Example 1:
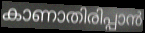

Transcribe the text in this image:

കാണാതിരിപ്പാൻ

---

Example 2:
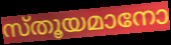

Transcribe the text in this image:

സ്തൂയമാനോ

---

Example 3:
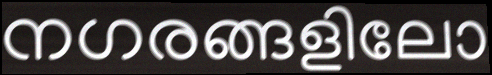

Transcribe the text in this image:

നഗരങ്ങളിലോ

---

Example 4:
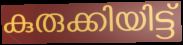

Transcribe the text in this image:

കുരുക്കിയിട്ട്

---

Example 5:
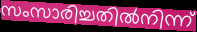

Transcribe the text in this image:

സംസാരിച്ചതിൽനിന്ന്